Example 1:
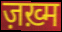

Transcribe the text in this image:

ज़ख़्म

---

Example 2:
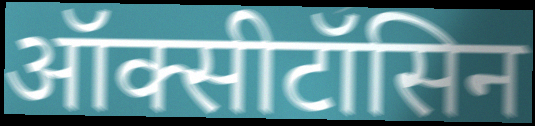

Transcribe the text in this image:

ऑक्सीटॉसिन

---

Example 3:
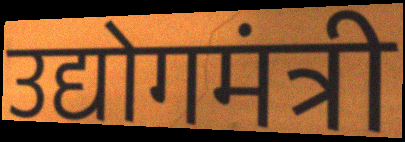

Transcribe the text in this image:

उद्योगमंत्री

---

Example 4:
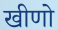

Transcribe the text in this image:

खीणो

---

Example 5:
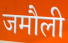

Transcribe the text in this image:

जमौली